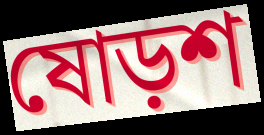
ষোড়শ